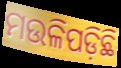
ମଉଳିପଡ଼ିଛି